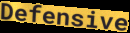
Defensive